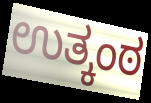
ಉತ್ಕಂಠ